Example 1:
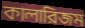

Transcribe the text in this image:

কালারিজম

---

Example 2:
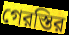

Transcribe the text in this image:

গেরস্তির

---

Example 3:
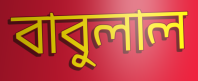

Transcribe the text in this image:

বাবুলাল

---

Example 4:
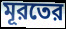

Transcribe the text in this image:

মূরতের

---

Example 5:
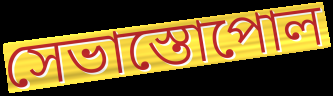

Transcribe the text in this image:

সেভাস্তোপোল